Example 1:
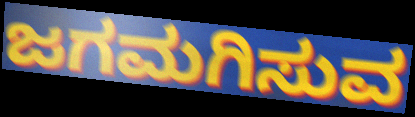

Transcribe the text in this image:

ಜಗಮಗಿಸುವ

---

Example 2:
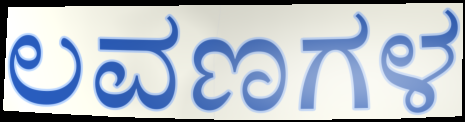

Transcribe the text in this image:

ಲವಣಗಳ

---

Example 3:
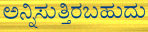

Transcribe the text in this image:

ಅನ್ನಿಸುತ್ತಿರಬಹುದು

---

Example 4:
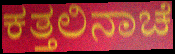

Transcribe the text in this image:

ಕತ್ತಲಿನಾಚೆ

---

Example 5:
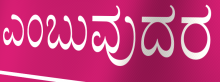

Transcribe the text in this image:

ಎಂಬುವುದರ